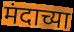
मंदाच्या